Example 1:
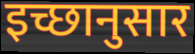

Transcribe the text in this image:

इच्छानुसार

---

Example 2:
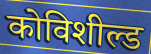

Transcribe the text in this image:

कोविशील्ड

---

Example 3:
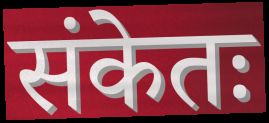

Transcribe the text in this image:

संकेतः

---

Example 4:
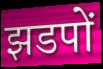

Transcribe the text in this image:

झडपों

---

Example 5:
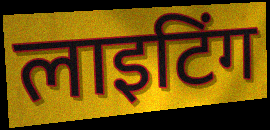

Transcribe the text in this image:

लाइटिंग